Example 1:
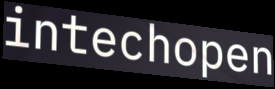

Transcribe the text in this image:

intechopen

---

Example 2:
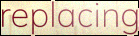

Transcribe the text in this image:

replacing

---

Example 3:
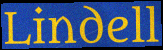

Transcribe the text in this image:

Lindell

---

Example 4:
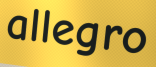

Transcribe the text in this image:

allegro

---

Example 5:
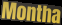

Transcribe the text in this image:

Montha